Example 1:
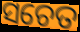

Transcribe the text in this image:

ସଚେତ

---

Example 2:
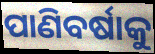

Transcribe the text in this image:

ପାଣିବର୍ଷାକୁ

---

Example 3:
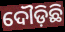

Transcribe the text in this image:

ଦୌଡ଼ିଛି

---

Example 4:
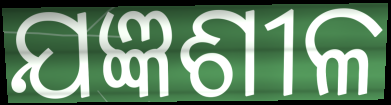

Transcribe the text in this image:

ଯଜ୍ଞଶୀଳ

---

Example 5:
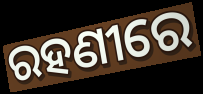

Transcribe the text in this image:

ରହଣୀରେ